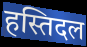
हस्तिदल